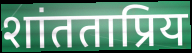
शांतताप्रिय